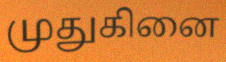
முதுகினை